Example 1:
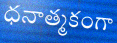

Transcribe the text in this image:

ధనాత్మకంగా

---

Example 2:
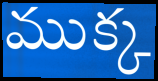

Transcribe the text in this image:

ముక్క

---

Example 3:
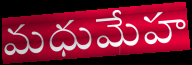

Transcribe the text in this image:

మధుమేహ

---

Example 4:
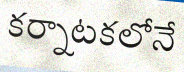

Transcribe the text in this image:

కర్నాటకలోనే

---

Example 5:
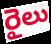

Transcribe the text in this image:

రైలు